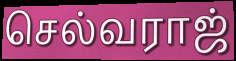
செல்வராஜ்